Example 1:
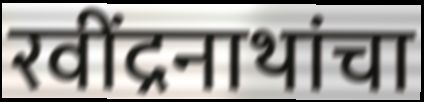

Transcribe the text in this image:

रवींद्रनाथांचा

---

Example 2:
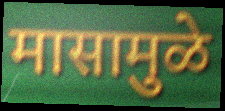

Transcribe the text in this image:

मासामुळे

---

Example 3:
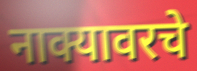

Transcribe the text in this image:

नाक्यावरचे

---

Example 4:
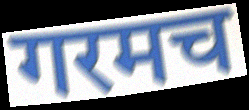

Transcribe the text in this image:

गरमच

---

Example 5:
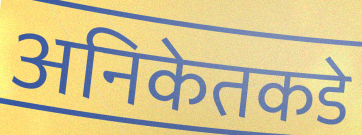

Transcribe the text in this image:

अनिकेतकडे